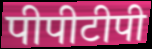
पीपीटीपी